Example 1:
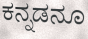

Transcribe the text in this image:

ಕನ್ನಡನೂ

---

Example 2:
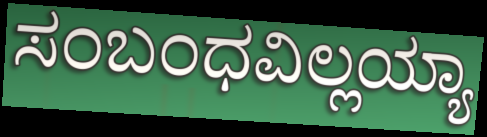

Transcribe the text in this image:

ಸಂಬಂಧವಿಲ್ಲಯ್ಯಾ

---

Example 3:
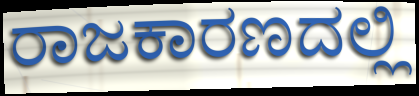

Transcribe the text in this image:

ರಾಜಕಾರಣದಲ್ಲಿ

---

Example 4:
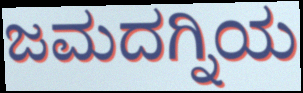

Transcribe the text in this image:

ಜಮದಗ್ನಿಯ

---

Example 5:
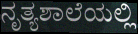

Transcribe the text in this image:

ನೃತ್ಯಶಾಲೆಯಲ್ಲಿ